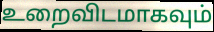
உறைவிடமாகவும்